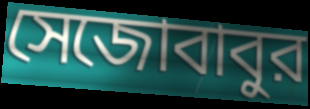
সেজোবাবুর